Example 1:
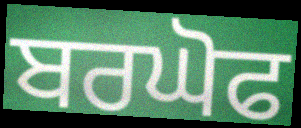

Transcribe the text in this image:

ਬਰਘੋਫ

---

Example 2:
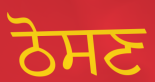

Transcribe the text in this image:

ਠੋਸਣ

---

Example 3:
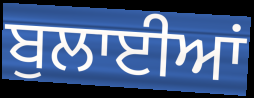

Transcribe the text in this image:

ਬੁਲਾਈਆਂ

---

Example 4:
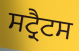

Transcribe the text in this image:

ਸਟ੍ਰੈਟਸ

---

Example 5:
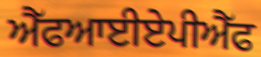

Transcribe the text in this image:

ਐੱਫਆਈਏਪੀਐੱਫ